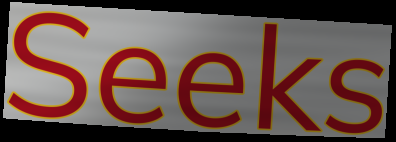
Seeks